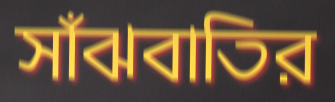
সাঁঝবাতির